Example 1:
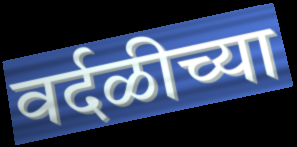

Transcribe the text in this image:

वर्दळीच्या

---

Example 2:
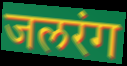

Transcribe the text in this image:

जलरंग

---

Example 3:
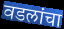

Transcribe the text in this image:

वडलांचा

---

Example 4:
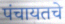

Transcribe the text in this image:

पंचायतचे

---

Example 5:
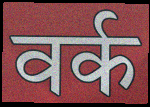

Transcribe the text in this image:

वर्क